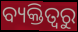
ବ୍ୟକ୍ତିତ୍ଵରୁ